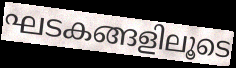
ഘടകങ്ങളിലൂടെ